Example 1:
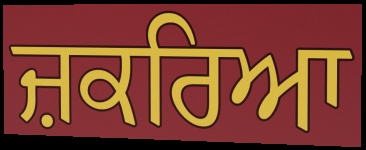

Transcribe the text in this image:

ਜ਼ਕਰਿਆ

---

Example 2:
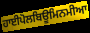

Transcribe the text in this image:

ਹਾਈਪੋਲਬਿਊਮਿਨਮੀਆ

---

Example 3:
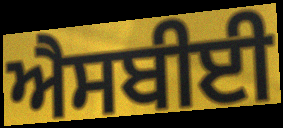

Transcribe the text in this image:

ਐਸਬੀਈ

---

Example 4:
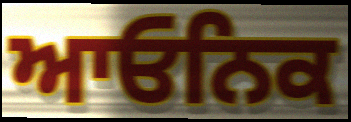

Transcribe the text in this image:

ਆਓਨਿਕ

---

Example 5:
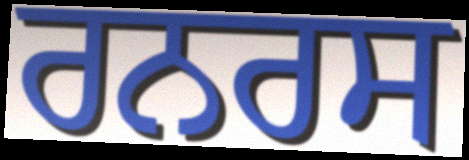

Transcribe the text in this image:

ਰਨਰਸ